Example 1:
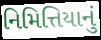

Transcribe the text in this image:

નિમિત્તિયાનું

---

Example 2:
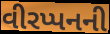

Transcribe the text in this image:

વીરપ્પનની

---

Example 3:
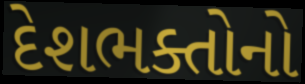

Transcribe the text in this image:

દેશભક્તોનો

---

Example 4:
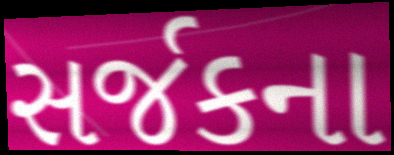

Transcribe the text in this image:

સર્જકના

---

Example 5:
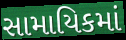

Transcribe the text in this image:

સામાયિકમાં